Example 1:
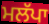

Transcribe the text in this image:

ਮਲੱਪਾ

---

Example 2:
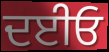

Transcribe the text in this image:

ਦਈਓ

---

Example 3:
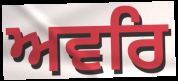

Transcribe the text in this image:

ਅਵਰਿ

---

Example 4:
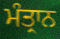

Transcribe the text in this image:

ਮੰਤ੍ਰਾਨ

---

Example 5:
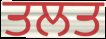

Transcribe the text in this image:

ਤਲਤ